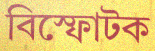
বিস্ফোটক